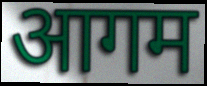
आगम